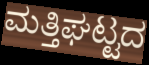
ಮತ್ತಿಘಟ್ಟದ